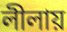
লীলায়